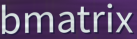
bmatrix